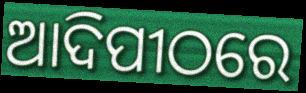
ଆଦିପୀଠରେ